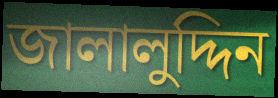
জালালুদ্দিন